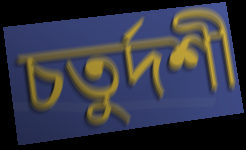
চতুর্দশী